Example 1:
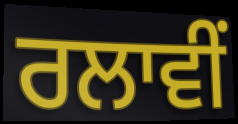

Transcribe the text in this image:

ਰਲਾਵੀਂ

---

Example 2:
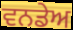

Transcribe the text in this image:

ਵਨਡੇਅ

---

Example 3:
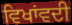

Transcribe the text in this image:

ਵਿਖਾਂਵਦੀ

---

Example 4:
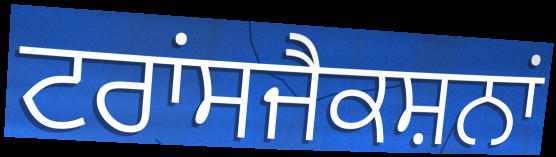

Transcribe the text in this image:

ਟਰਾਂਸਜੈਕਸ਼ਨਾਂ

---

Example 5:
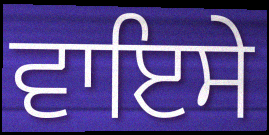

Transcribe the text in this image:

ਵਾਇਸੇ